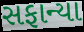
સફાન્યા